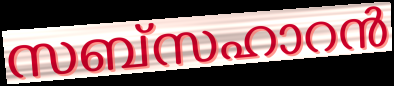
സബ്സഹാറൻ